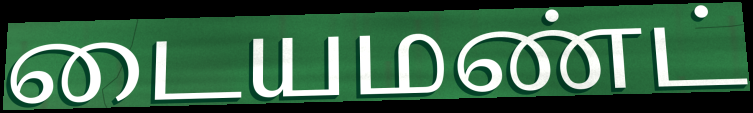
டையமண்ட்